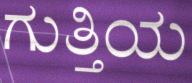
ಗುತ್ತಿಯ